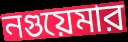
নগুয়েমার